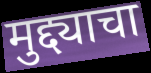
मुद्द्याचा